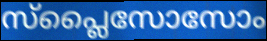
സ്പ്ലൈസോസോം